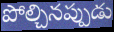
పోల్చినప్పుడు